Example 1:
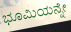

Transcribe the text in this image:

ಭೂಮಿಯನ್ನೇ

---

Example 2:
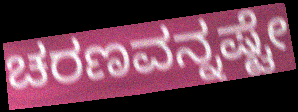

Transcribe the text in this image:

ಚರಣವನ್ನಷ್ಟೇ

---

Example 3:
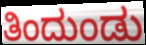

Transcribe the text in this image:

ತಿಂದುಂಡು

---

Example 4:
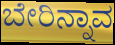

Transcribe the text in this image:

ಬೇರಿನ್ನಾವ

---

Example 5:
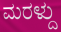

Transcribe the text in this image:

ಮರಳ್ದು